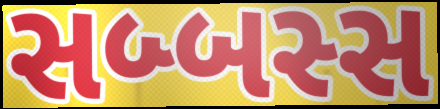
સબ્બસ્સ